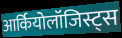
आर्कियोलॉजिस्ट्स